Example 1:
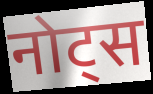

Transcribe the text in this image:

नोट्स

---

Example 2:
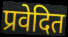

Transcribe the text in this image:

प्रवेदित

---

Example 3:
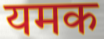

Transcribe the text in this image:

यमक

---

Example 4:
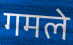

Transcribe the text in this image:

गमले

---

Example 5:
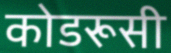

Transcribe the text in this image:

कोडरूसी